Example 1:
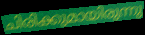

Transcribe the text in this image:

ചിരിക്കുമായിരുന്നു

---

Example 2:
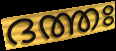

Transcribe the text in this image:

ദത്തഃ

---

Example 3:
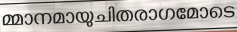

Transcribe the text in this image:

മ്മാനമായുചിതരാഗമോടെ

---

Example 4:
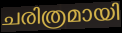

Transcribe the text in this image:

ചരിത്രമായി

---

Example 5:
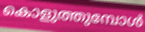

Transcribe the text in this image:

കൊളുത്തുമ്പോൾ